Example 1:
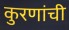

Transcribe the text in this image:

कुरणांची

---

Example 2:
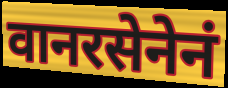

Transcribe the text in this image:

वानरसेनेनं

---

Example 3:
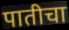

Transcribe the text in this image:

पातीचा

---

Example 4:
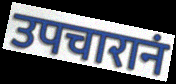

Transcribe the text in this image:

उपचारानं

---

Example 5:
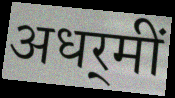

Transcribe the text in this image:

अधर्मीं